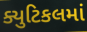
ક્યુટિકલમાં